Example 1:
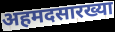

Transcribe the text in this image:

अहमदसारख्या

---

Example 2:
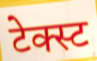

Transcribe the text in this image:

टेक्स्ट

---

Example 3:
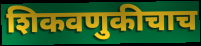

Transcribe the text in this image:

शिकवणुकीचाच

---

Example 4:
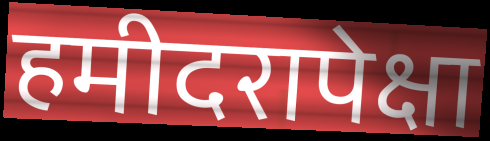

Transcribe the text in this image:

हमीदरापेक्षा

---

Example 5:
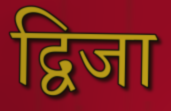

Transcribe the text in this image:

द्विजा